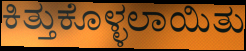
ಕಿತ್ತುಕೊಳ್ಳಲಾಯಿತು